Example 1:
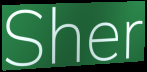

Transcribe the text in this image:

Sher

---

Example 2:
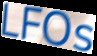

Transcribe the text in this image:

LFOs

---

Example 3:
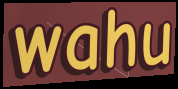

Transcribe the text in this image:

wahu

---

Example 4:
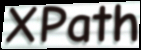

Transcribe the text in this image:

XPath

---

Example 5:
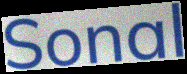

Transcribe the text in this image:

Sonal